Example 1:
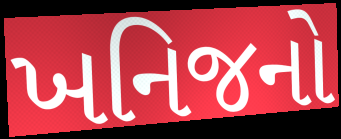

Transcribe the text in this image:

ખનિજનો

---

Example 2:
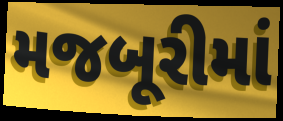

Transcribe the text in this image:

મજબૂરીમાં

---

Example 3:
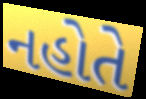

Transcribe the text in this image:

નહોતે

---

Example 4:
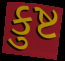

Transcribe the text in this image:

કુષ્ટ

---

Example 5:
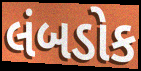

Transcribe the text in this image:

લંબડોક